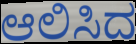
ಆಲಿಸಿದ